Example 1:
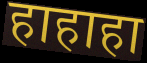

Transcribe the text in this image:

हाहाहा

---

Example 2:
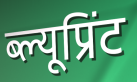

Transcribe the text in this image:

ब्ल्यूप्रिंट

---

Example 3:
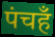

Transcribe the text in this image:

पंचहँ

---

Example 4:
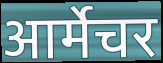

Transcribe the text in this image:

आर्मेचर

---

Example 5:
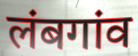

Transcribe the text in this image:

लंबगांव